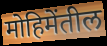
मोहिमेंतील